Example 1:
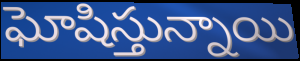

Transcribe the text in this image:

ఘోషిస్తున్నాయి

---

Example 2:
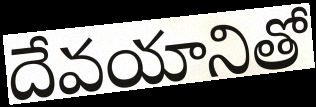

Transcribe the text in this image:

దేవయానితో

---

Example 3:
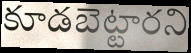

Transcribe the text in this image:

కూడబెట్టారని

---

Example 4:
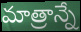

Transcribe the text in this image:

మాత్రాన్నే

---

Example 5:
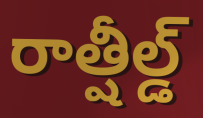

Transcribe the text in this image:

రాత్షీల్డ్